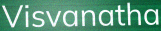
Visvanatha